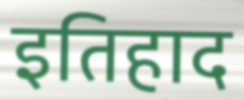
इतिहाद